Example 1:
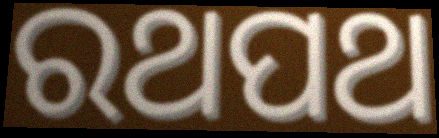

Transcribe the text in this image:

ରଥପଥ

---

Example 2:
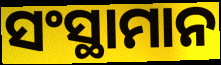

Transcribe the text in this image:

ସଂସ୍ଥାମାନ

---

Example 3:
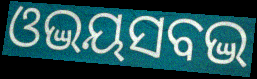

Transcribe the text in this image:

ଓଦ୍ଭୟସବଦ୍ଭ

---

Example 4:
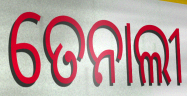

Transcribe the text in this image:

ତେନାଲୀ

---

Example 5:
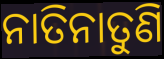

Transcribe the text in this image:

ନାତିନାତୁଣି